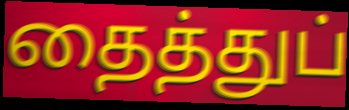
தைத்துப்